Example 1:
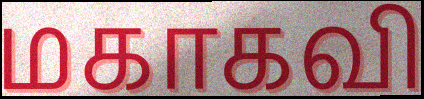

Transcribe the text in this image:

மகாகவி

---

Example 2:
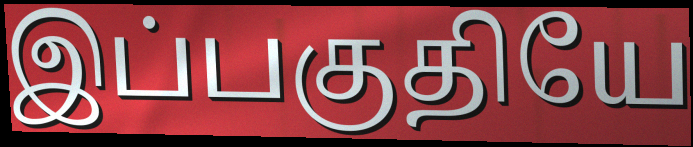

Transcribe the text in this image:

இப்பகுதியே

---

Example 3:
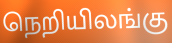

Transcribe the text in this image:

நெறியிலங்கு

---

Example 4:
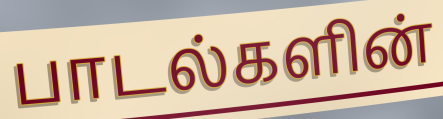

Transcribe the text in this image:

பாடல்களின்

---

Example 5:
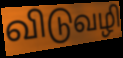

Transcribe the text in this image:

விடுவழி